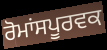
ਰੋਮਾਂਸਪੂਰਵਕ